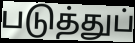
படுத்துப்